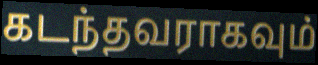
கடந்தவராகவும்